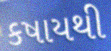
કષાયથી